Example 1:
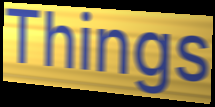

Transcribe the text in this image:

Things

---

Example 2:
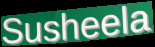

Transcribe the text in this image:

Susheela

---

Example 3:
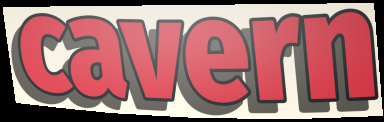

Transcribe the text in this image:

cavern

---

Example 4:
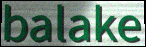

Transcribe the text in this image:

balake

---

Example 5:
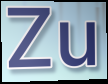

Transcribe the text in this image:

Zu